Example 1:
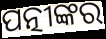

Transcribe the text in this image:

ପତ୍ନୀଙ୍କର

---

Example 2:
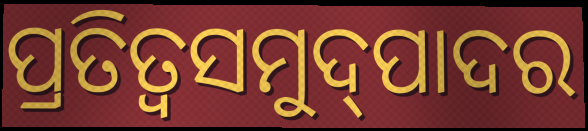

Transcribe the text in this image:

ପ୍ରତିତ୍ଵସମୁଦ୍‌ପାଦର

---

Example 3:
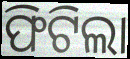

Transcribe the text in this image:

ଫିଟିଲା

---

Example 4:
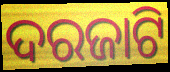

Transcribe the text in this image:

ଦରଜାଟି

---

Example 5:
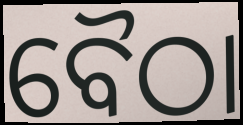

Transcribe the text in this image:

ବୈଠା